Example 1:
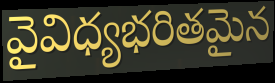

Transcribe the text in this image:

వైవిధ్యభరితమైన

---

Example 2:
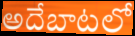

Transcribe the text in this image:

అదేబాటలో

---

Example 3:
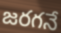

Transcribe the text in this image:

జరగనే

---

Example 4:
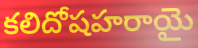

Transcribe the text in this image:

కలిదోషహరాయై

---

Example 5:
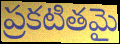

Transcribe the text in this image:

ప్రకటితమై